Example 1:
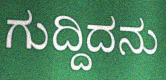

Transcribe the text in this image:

ಗುದ್ದಿದನು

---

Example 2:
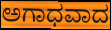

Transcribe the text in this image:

ಅಗಾಧವಾದ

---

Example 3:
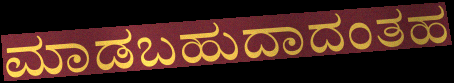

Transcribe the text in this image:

ಮಾಡಬಹುದಾದಂತಹ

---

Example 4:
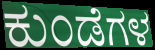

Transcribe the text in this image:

ಕುಂಡೆಗಳ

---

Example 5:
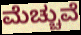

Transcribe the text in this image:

ಮೆಚ್ಚುವೆ